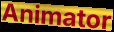
Animator